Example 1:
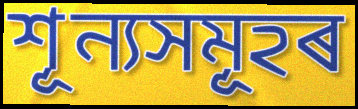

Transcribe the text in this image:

শূন্যসমূহৰ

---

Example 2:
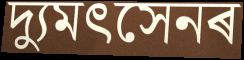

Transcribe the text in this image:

দ্যুমৎসেনৰ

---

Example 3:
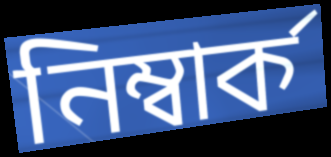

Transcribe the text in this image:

নিম্বাৰ্ক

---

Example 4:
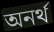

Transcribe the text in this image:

অনৰ্থ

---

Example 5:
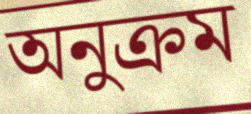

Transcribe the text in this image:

অনুক্ৰম